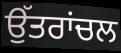
ਉੱਤਰਾਂਚਲ